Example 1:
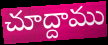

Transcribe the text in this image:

చూద్దాము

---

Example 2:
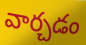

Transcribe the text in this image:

వార్చడం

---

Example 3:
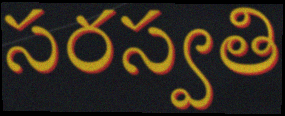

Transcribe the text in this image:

సరస్వతి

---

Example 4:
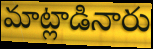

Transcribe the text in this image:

మాట్లాడినారు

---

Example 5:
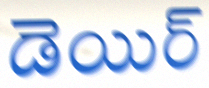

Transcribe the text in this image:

డెయిర్